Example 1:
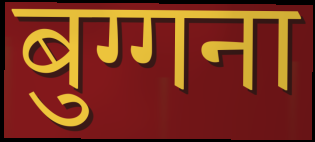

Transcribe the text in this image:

बुग्गना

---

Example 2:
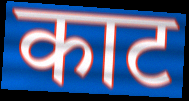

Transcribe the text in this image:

काट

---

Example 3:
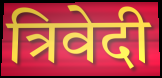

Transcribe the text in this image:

त्रिवेदी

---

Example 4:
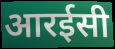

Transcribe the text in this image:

आरईसी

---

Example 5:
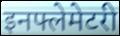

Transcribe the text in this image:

इनफ्लेमेटरी